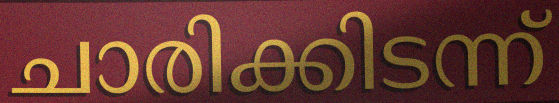
ചാരിക്കിടന്ന്